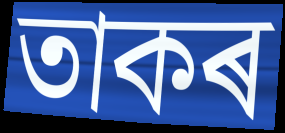
তাকৰ